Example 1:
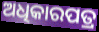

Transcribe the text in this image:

ଅଧିକାରପତ୍ର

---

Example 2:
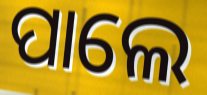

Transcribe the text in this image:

ପାଲେ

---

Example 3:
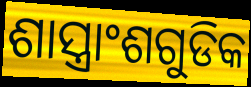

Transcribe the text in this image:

ଶାସ୍ତ୍ରାଂଶଗୁଡିକ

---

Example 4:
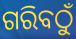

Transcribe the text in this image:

ଗରିବଠୁଁ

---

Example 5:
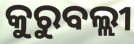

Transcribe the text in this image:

କୁରୁବଲ୍ଲୀ